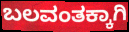
ಬಲವಂತಕ್ಕಾಗಿ